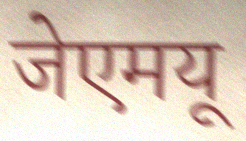
जेएमयू